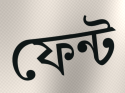
ফেন্ট